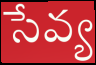
సేవ్య